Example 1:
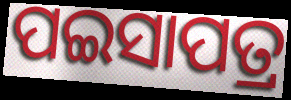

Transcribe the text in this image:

ପଇସାପତ୍ର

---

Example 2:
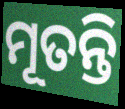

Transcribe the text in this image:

ମୂତନ୍ତି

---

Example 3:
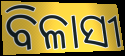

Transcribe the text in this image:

ବିଳାସୀ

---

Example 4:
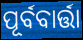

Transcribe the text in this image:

ପୂର୍ବବାର୍ତ୍ତା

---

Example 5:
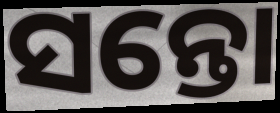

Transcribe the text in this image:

ସନ୍ତୋ